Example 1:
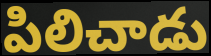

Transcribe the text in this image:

పిలిచాడు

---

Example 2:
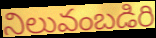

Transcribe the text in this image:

నిలువంబడిరి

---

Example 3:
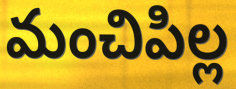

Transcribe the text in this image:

మంచిపిల్ల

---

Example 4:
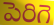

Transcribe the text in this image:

పెరిగె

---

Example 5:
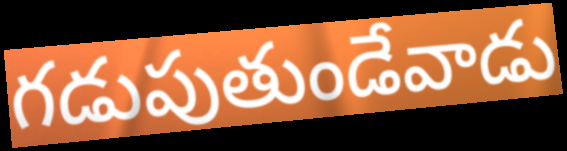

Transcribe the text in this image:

గడుపుతుండేవాడు